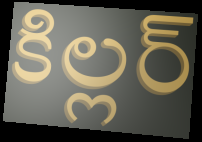
కిల్లర్